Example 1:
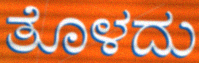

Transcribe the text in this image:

ತೊಳದು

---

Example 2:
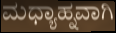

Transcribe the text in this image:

ಮಧ್ಯಾಹ್ನವಾಗಿ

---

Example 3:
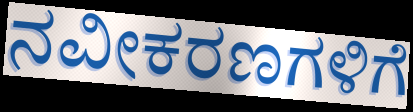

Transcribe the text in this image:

ನವೀಕರಣಗಳಿಗೆ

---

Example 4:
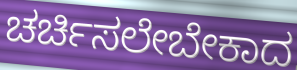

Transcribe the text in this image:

ಚರ್ಚಿಸಲೇಬೇಕಾದ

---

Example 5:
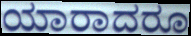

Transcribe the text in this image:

ಯಾರಾದರೂ